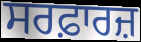
ਸਰਫ਼ਾਰਜ਼